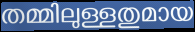
തമ്മിലുള്ളതുമായ